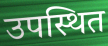
उपस्थित